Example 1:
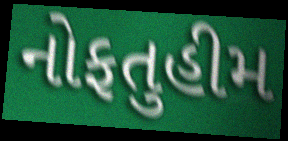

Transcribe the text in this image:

નોફતુહીમ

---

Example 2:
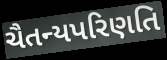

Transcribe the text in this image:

ચૈતન્યપરિણતિ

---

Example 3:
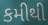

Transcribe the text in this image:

કમીથી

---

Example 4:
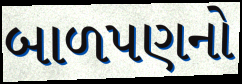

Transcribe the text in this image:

બાળપણનો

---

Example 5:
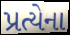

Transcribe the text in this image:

પ્રત્યેના